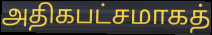
அதிகபட்சமாகத்